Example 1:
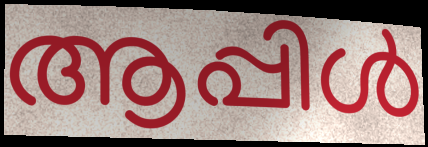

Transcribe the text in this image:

ആപ്പിൾ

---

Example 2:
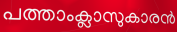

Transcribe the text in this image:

പത്താംക്ലാസുകാരൻ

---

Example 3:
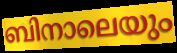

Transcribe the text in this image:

ബിനാലെയും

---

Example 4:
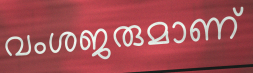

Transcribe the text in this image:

വംശജരുമാണ്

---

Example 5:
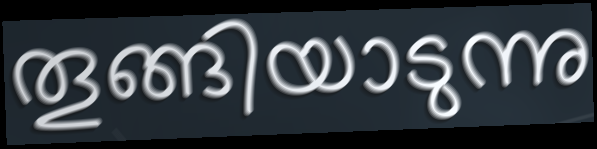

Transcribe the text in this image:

തൂങ്ങിയാടുന്നു